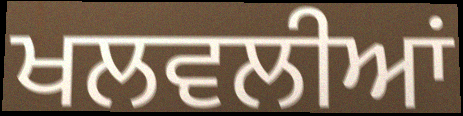
ਖਲਵਲੀਆਂ